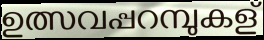
ഉത്സവപ്പറമ്പുകള്